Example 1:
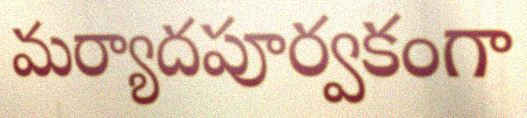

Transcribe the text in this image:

మర్యాదపూర్వకంగా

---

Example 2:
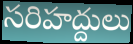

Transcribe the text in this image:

సరిహద్దులు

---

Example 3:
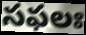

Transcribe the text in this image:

సఫలః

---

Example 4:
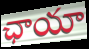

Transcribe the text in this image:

ఛాయా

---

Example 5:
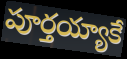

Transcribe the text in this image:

పూర్తయ్యాకే